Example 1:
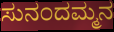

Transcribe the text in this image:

ಸುನಂದಮ್ಮನ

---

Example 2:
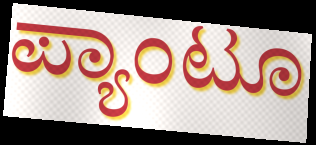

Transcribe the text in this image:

ಪ್ಯಾಂಟೂ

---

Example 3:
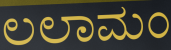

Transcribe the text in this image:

ಲಲಾಮಂ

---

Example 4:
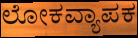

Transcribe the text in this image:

ಲೋಕವ್ಯಾಪಕ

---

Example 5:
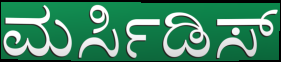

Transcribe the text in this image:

ಮರ್ಸಿಡಿಸ್